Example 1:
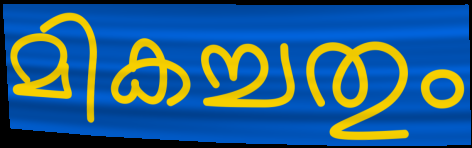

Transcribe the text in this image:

മികച്ചതും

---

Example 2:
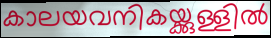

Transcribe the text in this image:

കാലയവനികയ്ക്കുള്ളിൽ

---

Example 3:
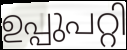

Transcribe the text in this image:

ഉപ്പുപറ്റി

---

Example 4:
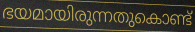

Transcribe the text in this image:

ഭയമായിരുന്നതുകൊണ്ട്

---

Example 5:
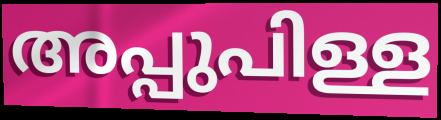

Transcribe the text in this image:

അപ്പുപിള്ള